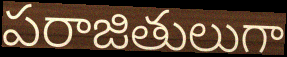
పరాజితులుగా